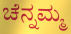
ಚೆನ್ನಮ್ಮ